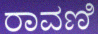
ರಾವಣಿ